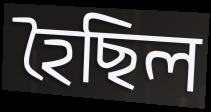
হৈছিল